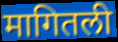
मागितली